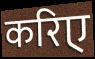
करिए